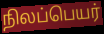
நிலப்பெயர்